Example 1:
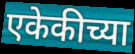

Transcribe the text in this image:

एकेकीच्या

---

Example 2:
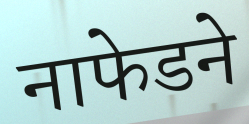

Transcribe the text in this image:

नाफेडने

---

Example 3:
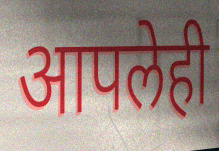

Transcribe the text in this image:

आपलेही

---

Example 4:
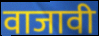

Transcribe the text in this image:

वाजावी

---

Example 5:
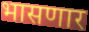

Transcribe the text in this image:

भासणार